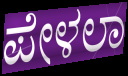
ಪೇಳಲಾ